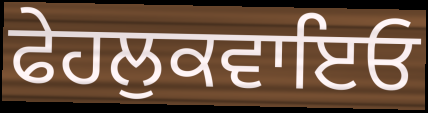
ਫੇਹਲੁਕਵਾਇਓ